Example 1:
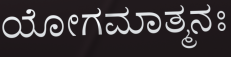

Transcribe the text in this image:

ಯೋಗಮಾತ್ಮನಃ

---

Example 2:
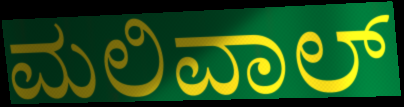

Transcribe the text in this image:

ಮಲಿವಾಲ್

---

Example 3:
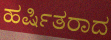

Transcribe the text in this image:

ಹರ್ಷಿತರಾದ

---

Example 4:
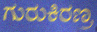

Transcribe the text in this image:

ಗುರುಕಿರಣ್ರ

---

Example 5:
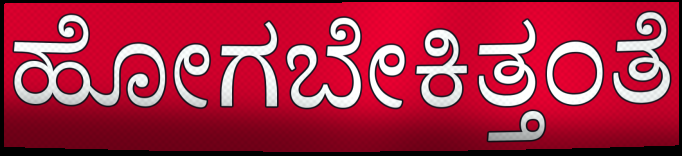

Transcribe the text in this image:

ಹೋಗಬೇಕಿತ್ತಂತೆ